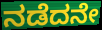
ನಡೆದನೇ